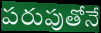
పరుపుతోనే